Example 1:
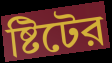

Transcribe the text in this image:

ষ্টিটের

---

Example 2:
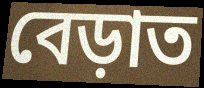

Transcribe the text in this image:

বেড়াত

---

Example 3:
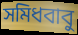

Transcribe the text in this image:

সমিধবাবু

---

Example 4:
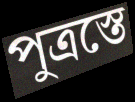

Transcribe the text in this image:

পুত্রস্তে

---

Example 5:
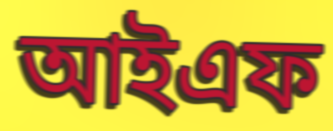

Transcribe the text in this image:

আইএফ